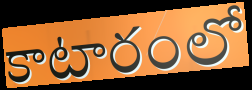
కాటారంలో